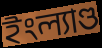
ইংল্যাণ্ড